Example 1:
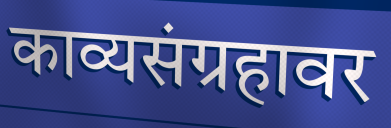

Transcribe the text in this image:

काव्यसंग्रहावर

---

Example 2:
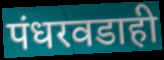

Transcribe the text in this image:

पंधरवडाही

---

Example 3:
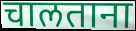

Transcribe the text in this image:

चालताना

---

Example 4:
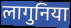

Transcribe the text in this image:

लागुनिया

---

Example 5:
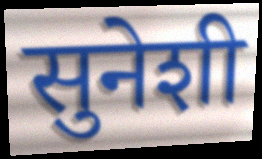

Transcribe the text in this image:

सुनेशी